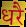
धरै